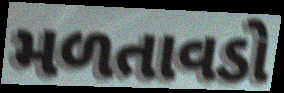
મળતાવડો